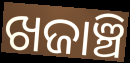
ଖଜାଞ୍ଚି